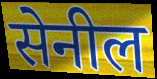
सेनील